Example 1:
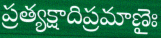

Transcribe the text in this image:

ప్రత్యక్షాదిప్రమాణైః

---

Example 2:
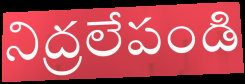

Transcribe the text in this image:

నిద్రలేపండి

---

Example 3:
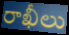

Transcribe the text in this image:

రాఖీలు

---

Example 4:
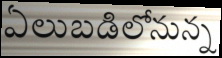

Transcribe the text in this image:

ఏలుబడిలోనున్న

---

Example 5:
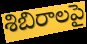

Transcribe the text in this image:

శిబిరాలపై